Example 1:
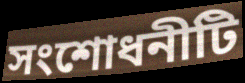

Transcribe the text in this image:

সংশোধনীটি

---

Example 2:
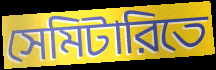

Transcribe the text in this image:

সেমিটারিতে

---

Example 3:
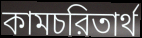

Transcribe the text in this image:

কামচরিতার্থ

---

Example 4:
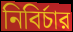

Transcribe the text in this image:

নিবির্চার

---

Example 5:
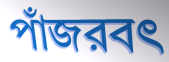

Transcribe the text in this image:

পাঁজরবৎ